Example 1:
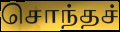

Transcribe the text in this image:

சொந்தச்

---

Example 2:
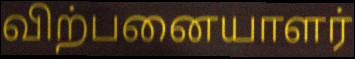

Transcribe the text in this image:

விற்பனையாளர்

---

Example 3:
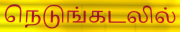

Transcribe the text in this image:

நெடுங்கடலில்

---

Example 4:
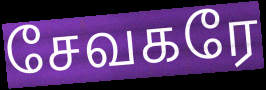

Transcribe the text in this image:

சேவகரே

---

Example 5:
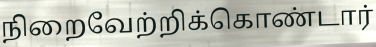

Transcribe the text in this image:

நிறைவேற்றிக்கொண்டார்